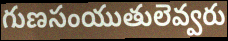
గుణసంయుతులెవ్వరు